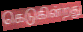
கெடுகின்றது